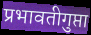
प्रभावतीगुप्ता